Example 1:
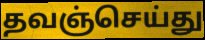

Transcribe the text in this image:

தவஞ்செய்து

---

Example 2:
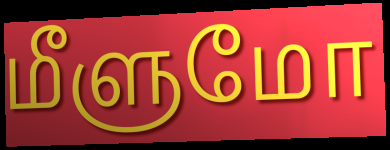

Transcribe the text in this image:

மீளுமோ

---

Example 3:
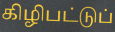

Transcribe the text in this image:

கிழிபட்டுப்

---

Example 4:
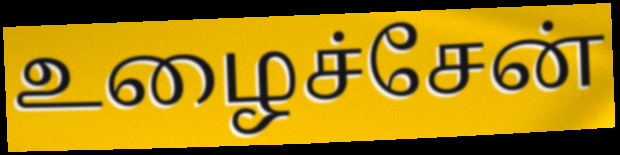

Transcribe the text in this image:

உழைச்சேன்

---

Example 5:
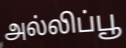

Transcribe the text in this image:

அல்லிப்பூ